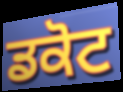
ਡਕੋਟ